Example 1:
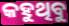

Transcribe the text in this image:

କହୁଥିବୁ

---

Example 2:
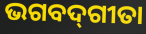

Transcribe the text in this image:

ଭଗବଦ୍‌ଗୀତା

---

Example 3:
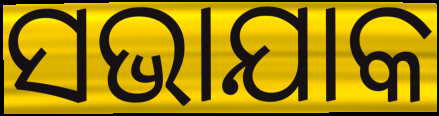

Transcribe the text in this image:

ସଭାଯାକ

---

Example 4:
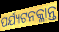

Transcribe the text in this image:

ପର୍ଯ୍ୟଟନକ୍ଳାନ୍ତ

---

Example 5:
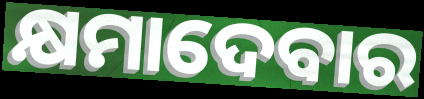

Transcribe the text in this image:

କ୍ଷମାଦେବାର